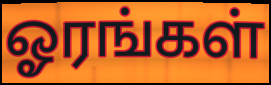
ஓரங்கள்